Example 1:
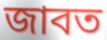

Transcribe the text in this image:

জাবত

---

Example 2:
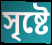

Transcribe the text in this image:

সৃষ্টে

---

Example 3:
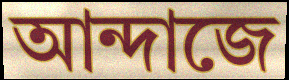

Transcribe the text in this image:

আন্দাজে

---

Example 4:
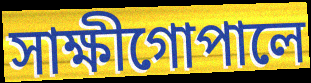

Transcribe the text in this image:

সাক্ষীগোপালে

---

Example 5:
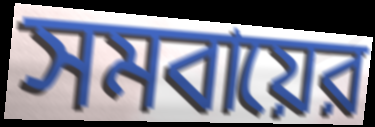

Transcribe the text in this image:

সমবায়ের